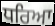
ਧਰਿਆ